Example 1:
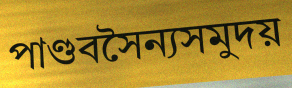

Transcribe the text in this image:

পাণ্ডবসৈন্যসমুদয়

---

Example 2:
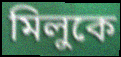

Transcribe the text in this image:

মিলুকে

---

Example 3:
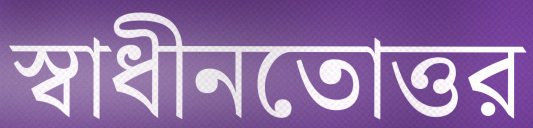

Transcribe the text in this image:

স্বাধীনতোত্তর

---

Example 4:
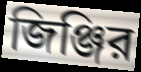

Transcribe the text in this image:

জিঞ্জির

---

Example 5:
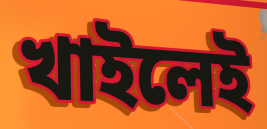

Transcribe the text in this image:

খাইলেই